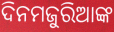
ଦିନମଜୁରିଆଙ୍କ